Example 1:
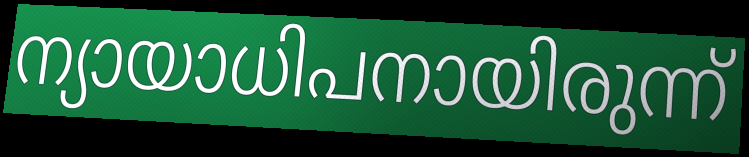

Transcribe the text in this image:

ന്യായാധിപനായിരുന്ന്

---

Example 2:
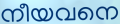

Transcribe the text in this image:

നീയവനെ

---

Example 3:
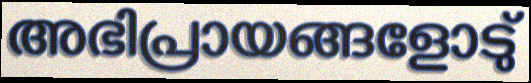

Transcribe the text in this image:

അഭിപ്രായങ്ങളോടു്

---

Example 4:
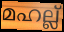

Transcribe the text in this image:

മഹല്ല്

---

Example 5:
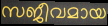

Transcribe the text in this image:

സജീവമായ